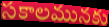
సకాలమునకు